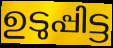
ഉടുപ്പിട്ട